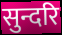
सुन्दरि